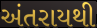
અંતરાયથી